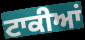
ਟਾਕੀਆਂ